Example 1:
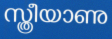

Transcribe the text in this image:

സ്ത്രീയാണു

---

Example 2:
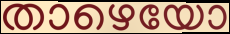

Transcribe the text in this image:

താഴെയോ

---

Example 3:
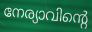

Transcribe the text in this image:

നേര്യാവിന്റെ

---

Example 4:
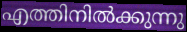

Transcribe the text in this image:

എത്തിനിൽക്കുന്നു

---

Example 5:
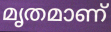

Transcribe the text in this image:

മൃതമാണ്